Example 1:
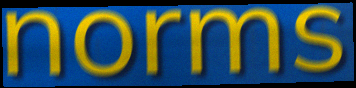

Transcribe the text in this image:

norms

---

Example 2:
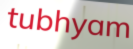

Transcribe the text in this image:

tubhyam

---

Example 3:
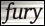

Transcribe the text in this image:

fury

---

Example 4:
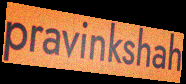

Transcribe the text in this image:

pravinkshah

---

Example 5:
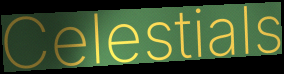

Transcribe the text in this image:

Celestials